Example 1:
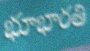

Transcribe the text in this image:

భూభారతి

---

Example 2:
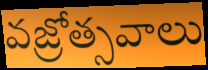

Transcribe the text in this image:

వజ్రోత్సవాలు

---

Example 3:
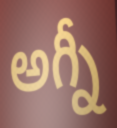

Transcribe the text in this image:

అగ్నీ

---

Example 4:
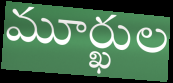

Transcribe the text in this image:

మూర్ఖుల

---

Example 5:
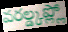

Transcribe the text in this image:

వరల్డ్కప్ల్లో